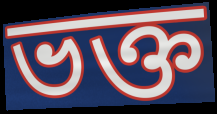
ভক্ত